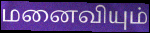
மனைவியும்